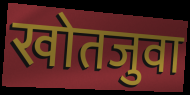
खोतजुवा